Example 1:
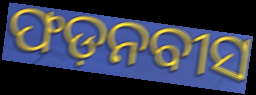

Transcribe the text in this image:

ଫଡ଼ନବୀସ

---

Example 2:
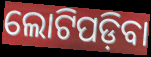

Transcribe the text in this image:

ଲୋଟିପଡ଼ିବା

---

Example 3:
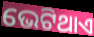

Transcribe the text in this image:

ଭେଟିଥାଏ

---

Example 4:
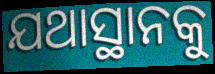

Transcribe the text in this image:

ଯଥାସ୍ଥାନକୁ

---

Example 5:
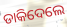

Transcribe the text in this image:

ଡାକିଦେଲେ